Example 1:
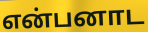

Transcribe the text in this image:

என்பனாட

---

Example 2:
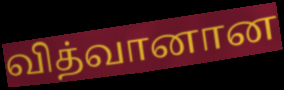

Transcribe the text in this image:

வித்வானான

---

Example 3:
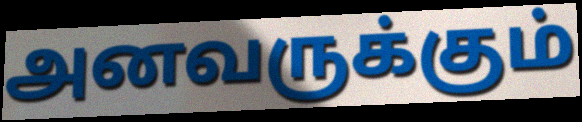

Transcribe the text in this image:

அனவருக்கும்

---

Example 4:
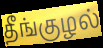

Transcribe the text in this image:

தீங்குழல்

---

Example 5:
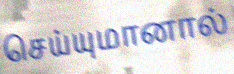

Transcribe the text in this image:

செய்யுமானால்